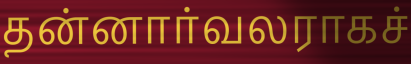
தன்னார்வலராகச்